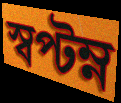
স্বপ্টম্ন